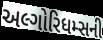
અલ્ગોરિધમ્સની